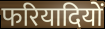
फरियादियों